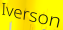
Iverson